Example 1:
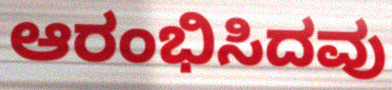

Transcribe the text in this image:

ಆರಂಭಿಸಿದವು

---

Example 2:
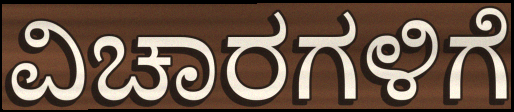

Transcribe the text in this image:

ವಿಚಾರಗಳಿಗೆ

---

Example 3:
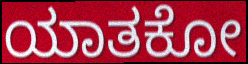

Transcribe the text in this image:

ಯಾತಕೋ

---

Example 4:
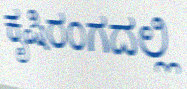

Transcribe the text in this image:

ಕೃಷಿರಂಗದಲ್ಲಿ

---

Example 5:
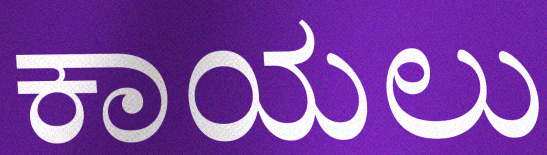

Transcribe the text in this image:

ಕಾಯಲು